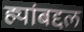
ह्यांबद्दल